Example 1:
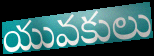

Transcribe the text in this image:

యువకులు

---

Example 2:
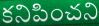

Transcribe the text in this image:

కనిపించని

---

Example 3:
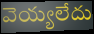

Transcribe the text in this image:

వెయ్యలేదు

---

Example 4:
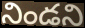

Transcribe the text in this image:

నిండని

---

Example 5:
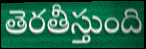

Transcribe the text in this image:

తెరతీస్తుంది